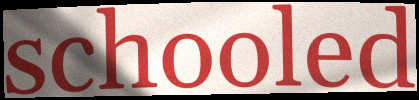
schooled